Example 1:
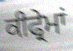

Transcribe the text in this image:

ਕੀਫ੍ਰੇਮਾਂ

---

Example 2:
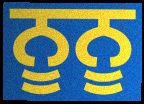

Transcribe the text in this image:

ਨੂਨੂ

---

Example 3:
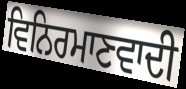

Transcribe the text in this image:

ਵਿਨਿਰਮਾਣਵਾਦੀ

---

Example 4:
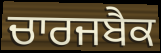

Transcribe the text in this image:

ਚਾਰਜਬੈਕ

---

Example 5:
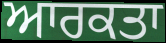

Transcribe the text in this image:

ਆਰਕਤਾ